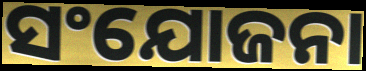
ସଂଯୋଜନା